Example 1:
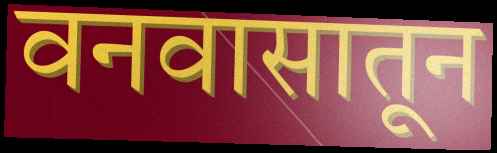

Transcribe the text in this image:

वनवासातून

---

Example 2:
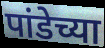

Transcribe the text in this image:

पांडेच्या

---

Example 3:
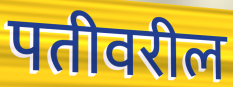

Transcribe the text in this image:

पतीवरील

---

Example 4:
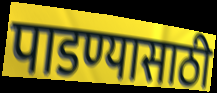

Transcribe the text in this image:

पाडण्यासाठी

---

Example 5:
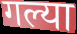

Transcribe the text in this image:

गल्या